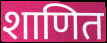
शाणित